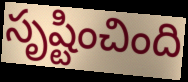
సృష్టించింది